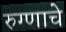
रुग्णाचे